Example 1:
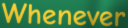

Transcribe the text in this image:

Whenever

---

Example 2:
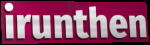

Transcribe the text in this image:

irunthen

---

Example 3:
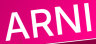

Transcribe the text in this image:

ARNI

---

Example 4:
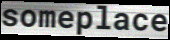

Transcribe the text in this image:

someplace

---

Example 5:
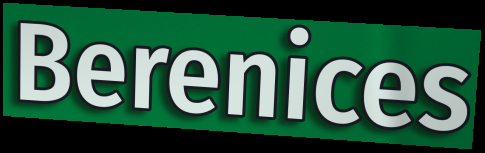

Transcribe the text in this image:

Berenices